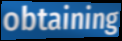
obtaining